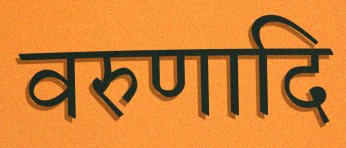
वरुणादि